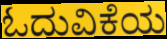
ಓದುವಿಕೆಯ